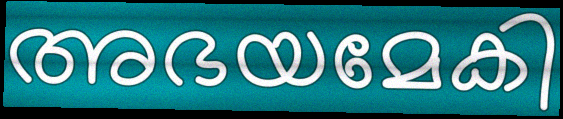
അഭയമേകി